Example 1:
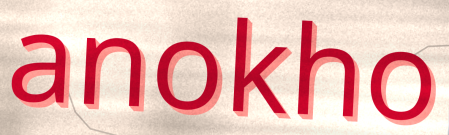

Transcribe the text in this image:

anokho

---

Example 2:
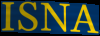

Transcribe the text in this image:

ISNA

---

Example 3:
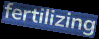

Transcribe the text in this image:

fertilizing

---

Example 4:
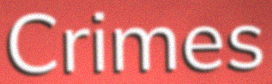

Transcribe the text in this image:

Crimes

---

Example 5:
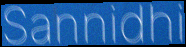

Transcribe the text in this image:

Sannidhi